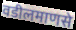
वडीलमाणसे